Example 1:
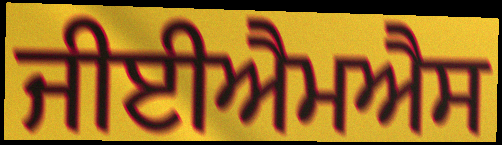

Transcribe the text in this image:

ਜੀਈਐਮਐਸ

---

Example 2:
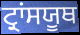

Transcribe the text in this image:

ਟ੍ਰਾਂਸਯੂਥ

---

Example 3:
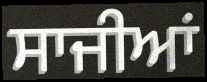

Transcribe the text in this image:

ਸਾਜੀਆਂ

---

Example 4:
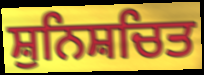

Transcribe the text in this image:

ਸ਼ੁਨਿਸ਼ਚਿਤ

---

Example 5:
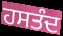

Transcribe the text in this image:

ਹਸਤੰਦ